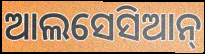
ଆଲସେସିଆନ୍